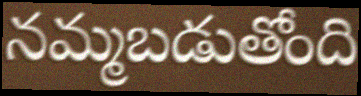
నమ్మబడుతోంది